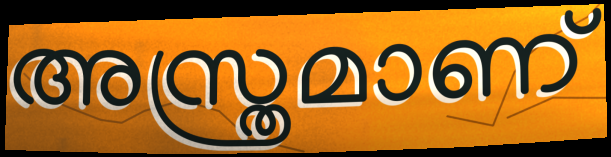
അസ്ത്രമാണ്